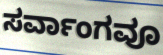
ಸರ್ವಾಂಗವೂ